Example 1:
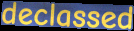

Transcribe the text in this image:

declassed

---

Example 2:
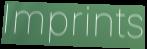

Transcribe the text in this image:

Imprints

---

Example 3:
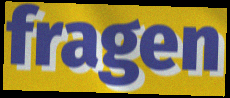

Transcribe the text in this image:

fragen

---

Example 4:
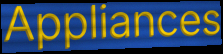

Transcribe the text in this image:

Appliances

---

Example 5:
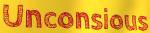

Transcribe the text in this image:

Unconsious